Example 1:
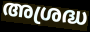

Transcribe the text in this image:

അശ്രദ്ധ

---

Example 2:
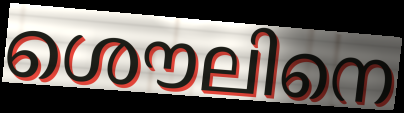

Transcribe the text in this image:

ശൌലിനെ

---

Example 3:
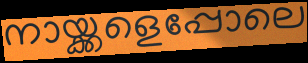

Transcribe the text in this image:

നായ്ക്കളെപ്പോലെ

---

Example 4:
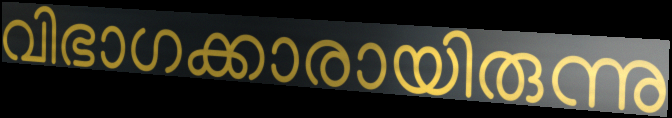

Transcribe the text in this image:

വിഭാഗക്കാരായിരുന്നു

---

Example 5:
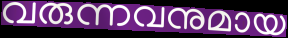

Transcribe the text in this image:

വരുന്നവനുമായ